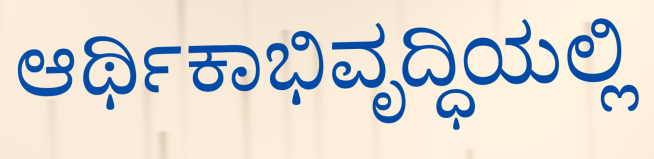
ಆರ್ಥಿಕಾಭಿವೃದ್ಧಿಯಲ್ಲಿ